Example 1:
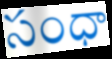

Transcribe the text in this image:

సంధా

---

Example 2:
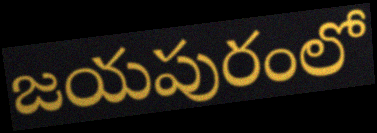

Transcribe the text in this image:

జయపురంలో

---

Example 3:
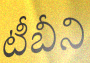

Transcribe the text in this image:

టీబీని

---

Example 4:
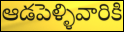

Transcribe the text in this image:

ఆడపెళ్ళివారికి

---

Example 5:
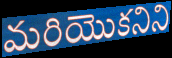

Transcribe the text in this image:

మరియొకనిని